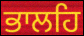
ਭਾਲਹਿ